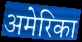
अमेरिका